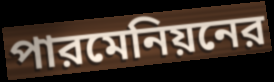
পারমেনিয়নের